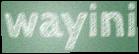
wayini